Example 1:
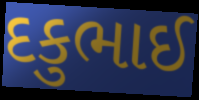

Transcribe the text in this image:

દકુભાઈ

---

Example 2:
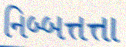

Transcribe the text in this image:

નિબ્બત્તત્તા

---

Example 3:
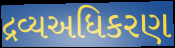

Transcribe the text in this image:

દ્રવ્યઅધિકરણ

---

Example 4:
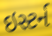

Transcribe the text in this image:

ઇસ્ટર્ન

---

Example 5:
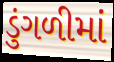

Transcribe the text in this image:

ડુંગળીમાં